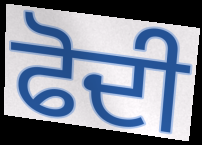
ਫੋਦੀ